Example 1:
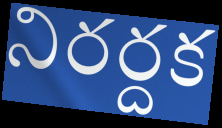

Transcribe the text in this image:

నిరర్దక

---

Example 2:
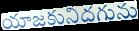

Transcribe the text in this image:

యాజకునిదగును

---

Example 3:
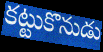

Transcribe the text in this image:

కట్టుకొనుడు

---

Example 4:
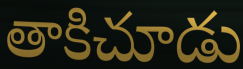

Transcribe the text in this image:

తాకిచూడు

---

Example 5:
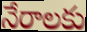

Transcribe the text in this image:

నేరాలకు